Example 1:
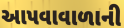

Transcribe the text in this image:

આપવાવાળાની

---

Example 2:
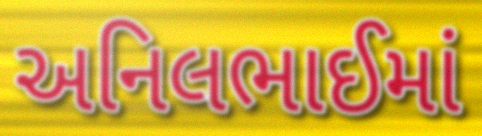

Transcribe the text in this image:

અનિલભાઈમાં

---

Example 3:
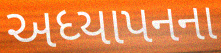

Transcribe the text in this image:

અધ્યાપનના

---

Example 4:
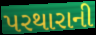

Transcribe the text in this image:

પરથારાની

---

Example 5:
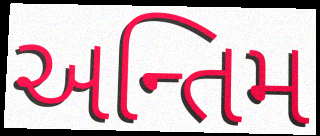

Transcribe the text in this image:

અન્તિમ